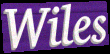
Wiles